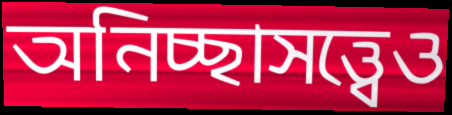
অনিচ্ছাসত্ত্বেও